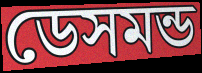
ডেসমন্ড